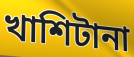
খাশিটানা